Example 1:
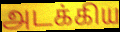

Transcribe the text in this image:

அடக்கிய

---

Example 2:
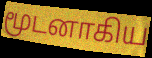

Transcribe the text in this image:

மூடனாகிய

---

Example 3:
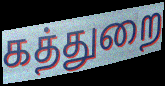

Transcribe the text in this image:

கத்துறை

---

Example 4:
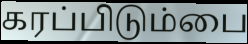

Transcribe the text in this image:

கரப்பிடும்பை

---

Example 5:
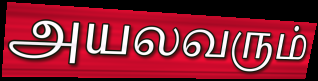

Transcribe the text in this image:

அயலவரும்